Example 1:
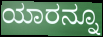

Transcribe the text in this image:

ಯಾರನ್ನೂ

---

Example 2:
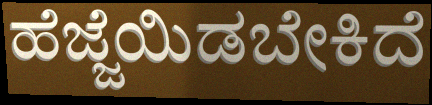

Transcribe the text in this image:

ಹೆಜ್ಜೆಯಿಡಬೇಕಿದೆ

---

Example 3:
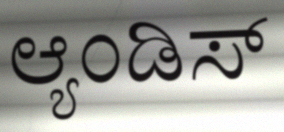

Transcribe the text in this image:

ಆ್ಯಂಡಿಸ್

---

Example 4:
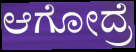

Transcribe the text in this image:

ಆಗೋದ್ರೆ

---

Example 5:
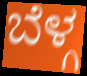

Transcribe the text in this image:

ಬೆಳ್ಗ